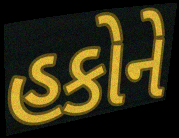
હકોને